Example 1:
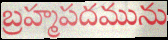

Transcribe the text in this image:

బ్రహ్మపదమును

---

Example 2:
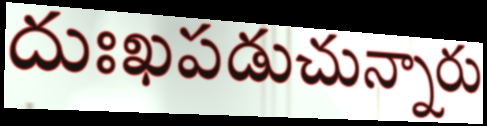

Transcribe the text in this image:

దుఃఖపడుచున్నారు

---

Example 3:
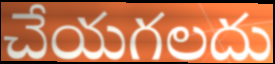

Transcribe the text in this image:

చేయగలదు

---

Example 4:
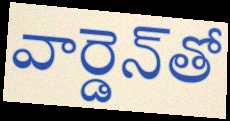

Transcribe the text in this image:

వార్డెన్‌తో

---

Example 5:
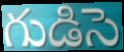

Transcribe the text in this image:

గుడిసె